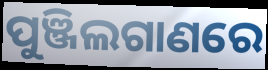
ପୁଞ୍ଜିଲଗାଣରେ